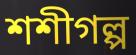
শশীগল্প